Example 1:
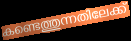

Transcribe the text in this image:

കണ്ടെത്തുന്നതിലേക്ക്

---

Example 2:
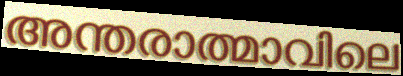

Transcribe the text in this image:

അന്തരാത്മാവിലെ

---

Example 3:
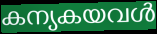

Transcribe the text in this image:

കന്യകയവൾ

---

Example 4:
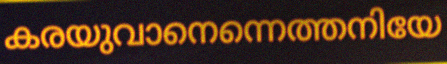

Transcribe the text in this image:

കരയുവാനെന്നെത്തനിയേ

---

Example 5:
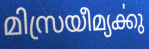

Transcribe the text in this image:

മിസ്രയീമ്യൎക്കു